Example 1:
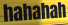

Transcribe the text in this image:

hahahah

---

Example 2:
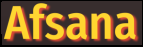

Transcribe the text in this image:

Afsana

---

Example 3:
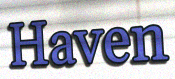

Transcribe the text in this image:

Haven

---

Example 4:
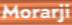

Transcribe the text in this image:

Morarji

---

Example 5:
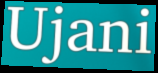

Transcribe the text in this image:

Ujani